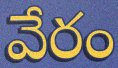
వేరం